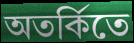
অতর্কিতে